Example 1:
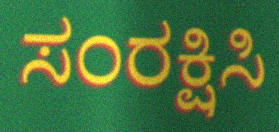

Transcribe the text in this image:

ಸಂರಕ್ಷಿಸಿ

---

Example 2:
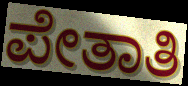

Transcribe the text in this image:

ಪೇತಾತಿ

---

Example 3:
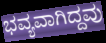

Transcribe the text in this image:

ಭವ್ಯವಾಗಿದ್ದವು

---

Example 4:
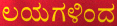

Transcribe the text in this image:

ಲಯಗಳಿಂದ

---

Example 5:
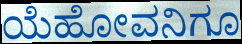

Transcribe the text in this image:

ಯೆಹೋವನಿಗೂ